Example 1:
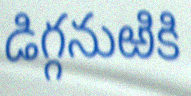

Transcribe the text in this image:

డిగ్గనుఱికి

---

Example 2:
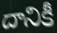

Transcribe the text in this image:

దానికీ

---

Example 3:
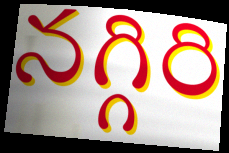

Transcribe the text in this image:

నగ్గిరి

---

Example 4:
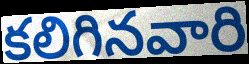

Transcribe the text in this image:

కలిగినవారి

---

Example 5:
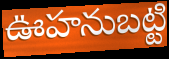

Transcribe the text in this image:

ఊహనుబట్టి